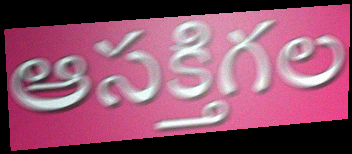
ఆసక్తిగల